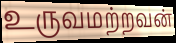
உருவமற்றவன்